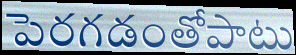
పెరగడంతోపాటు